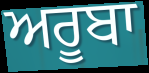
ਅਰੂਬਾ